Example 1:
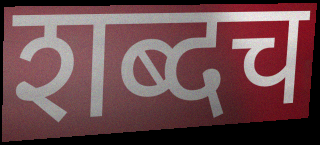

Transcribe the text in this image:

शब्दच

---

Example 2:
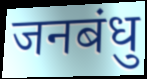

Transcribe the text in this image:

जनबंधु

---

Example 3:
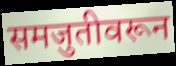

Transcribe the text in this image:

समजुतीवरून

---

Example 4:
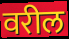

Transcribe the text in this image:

वरील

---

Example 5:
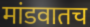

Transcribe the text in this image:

मांडवातच